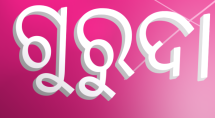
ଗୁରୁଦା